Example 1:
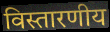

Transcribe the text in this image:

विस्तारणीय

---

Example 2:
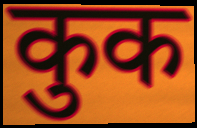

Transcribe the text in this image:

कुक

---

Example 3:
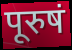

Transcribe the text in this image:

पूरुषं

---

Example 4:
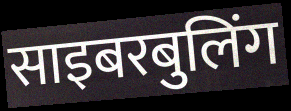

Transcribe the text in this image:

साइबरबुलिंग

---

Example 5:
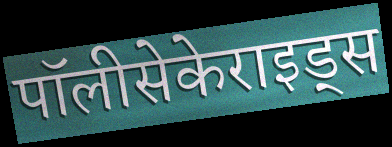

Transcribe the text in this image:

पॉलीसेकेराइड्स